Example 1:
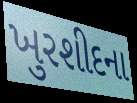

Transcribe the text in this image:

ખુરશીદના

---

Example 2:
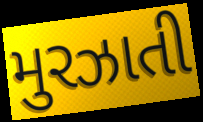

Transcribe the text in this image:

મુરઝાતી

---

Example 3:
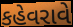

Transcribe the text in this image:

કહેવરાવે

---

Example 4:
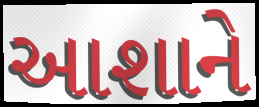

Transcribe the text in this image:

આશાને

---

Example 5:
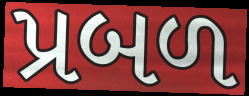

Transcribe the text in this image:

પ્રબળ